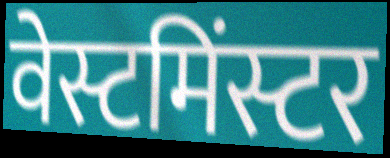
वेस्‍टमिंस्‍टर